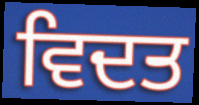
ਵਿਦਤ